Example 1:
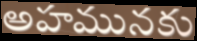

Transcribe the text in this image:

అహమునకు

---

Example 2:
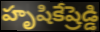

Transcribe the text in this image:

హృషికేష్రెడ్డి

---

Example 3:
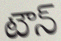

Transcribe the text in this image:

టౌన్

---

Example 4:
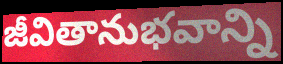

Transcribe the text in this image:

జీవితానుభవాన్ని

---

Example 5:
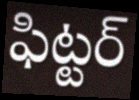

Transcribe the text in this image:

ఫిట్టర్